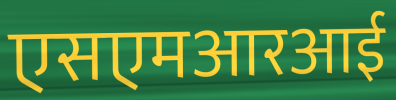
एसएमआरआई